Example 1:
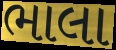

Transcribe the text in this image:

ભાલા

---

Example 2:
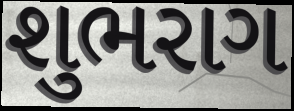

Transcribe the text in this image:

શુભરાગ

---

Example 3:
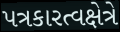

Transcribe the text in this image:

પત્રકારત્વક્ષેત્રે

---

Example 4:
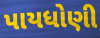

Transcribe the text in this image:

પાયધોણી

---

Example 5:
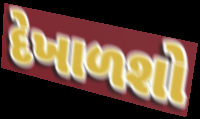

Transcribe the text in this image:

દેખાળશો